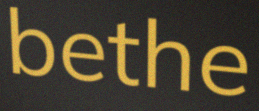
bethe